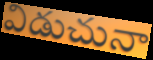
విడుచునా